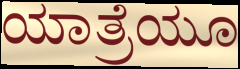
ಯಾತ್ರೆಯೂ